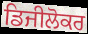
ਡਿਜੀਲੋਕਰ